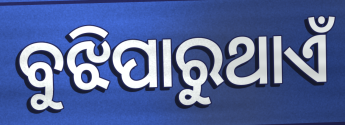
ବୁଝିପାରୁଥାଏଁ